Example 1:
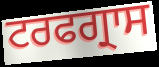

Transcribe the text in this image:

ਟਰਫਗ੍ਰਾਸ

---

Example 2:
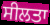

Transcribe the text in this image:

ਸੀਲਤਾ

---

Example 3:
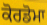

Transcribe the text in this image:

ਕੋਰਡੋਮਾ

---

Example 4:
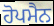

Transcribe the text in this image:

ਹੋਪਮੈਨ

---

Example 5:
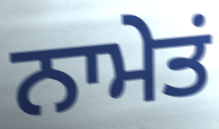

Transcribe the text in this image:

ਨਾਮੇਤਂ